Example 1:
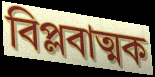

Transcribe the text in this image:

বিপ্লবাত্মক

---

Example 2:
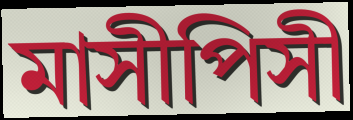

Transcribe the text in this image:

মাসীপিসী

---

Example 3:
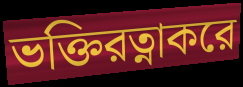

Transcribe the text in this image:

ভক্তিরত্নাকরে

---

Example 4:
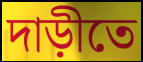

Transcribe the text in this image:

দাড়ীতে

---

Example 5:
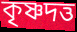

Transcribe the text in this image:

কৃষ্ণদত্ত